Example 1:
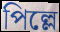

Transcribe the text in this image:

পিল্লে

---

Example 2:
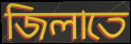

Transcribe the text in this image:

জিলাতে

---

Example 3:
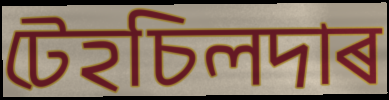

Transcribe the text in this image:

টেহচিলদাৰ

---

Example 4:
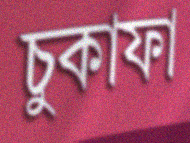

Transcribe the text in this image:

চুকাফা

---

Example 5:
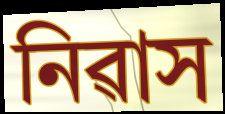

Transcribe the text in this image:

নিৱাস